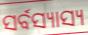
ସର୍ବସ୍ୟାସ୍ୟ